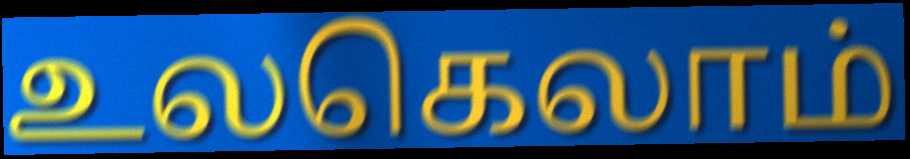
உலகெலாம்